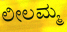
ಲೀಲಮ್ಮ